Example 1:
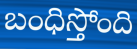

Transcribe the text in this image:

బంధిస్తోంది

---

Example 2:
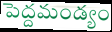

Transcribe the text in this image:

పెద్దమండ్యం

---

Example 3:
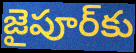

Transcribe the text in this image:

జైపూర్‌కు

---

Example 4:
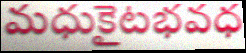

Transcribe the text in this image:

మధుకైటభవధ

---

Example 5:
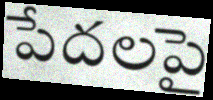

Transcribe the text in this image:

పేదలపై